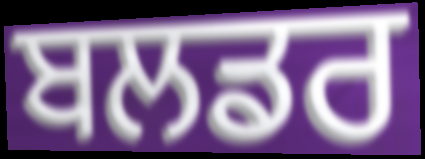
ਬਲਡਰ